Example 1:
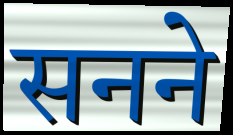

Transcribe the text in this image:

सनने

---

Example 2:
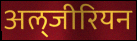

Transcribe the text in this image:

अल्जीरियन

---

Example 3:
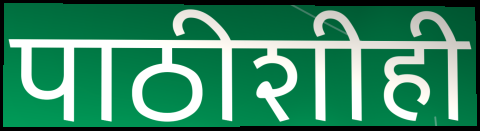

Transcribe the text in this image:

पाठीशीही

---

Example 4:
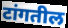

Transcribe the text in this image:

टांगतील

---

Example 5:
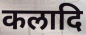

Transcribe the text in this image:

कलादि